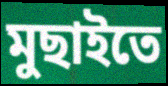
মুছাইতে